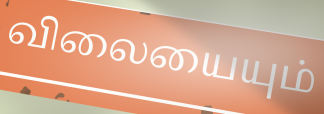
விலையையும்